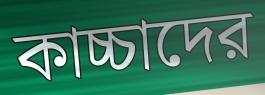
কাচ্চাদের